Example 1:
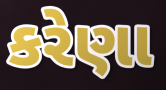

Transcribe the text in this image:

કરેણા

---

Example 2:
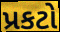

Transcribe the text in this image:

પ્રકટો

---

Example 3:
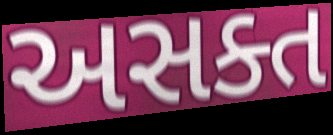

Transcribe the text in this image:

અસક્ત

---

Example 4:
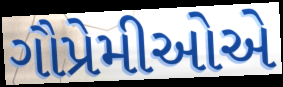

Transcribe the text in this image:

ગૌપ્રેમીઓએ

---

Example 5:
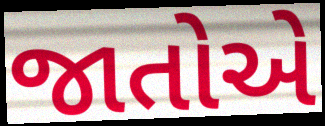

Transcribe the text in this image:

જાતોએ